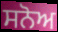
ਸਨੋਅ